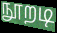
நூறடி